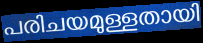
പരിചയമുള്ളതായി